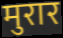
मुरार